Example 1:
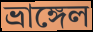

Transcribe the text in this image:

ভ্রাঙ্গেল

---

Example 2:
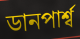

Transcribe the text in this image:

ডানপার্শ্ব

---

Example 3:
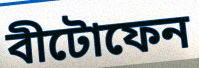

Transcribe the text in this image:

বীটোফেন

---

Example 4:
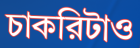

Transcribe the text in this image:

চাকরিটাও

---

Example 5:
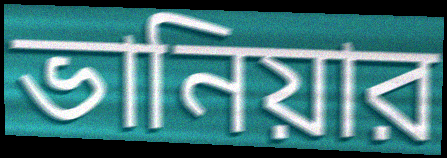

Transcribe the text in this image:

ভানিয়ার